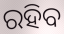
ରହିବ